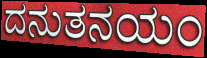
ದನುತನಯಂ